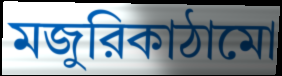
মজুরিকাঠামো